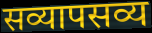
सव्यापसव्य